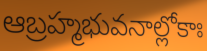
ఆబ్రహ్మభువనాల్లోకాః